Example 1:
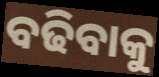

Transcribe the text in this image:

ବଢିବାକୁ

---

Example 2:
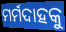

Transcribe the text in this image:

ମର୍ମଦାହକୁ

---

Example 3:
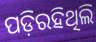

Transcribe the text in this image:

ପଡ଼ିରହିଥିଲି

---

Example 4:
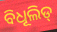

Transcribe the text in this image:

ବିଧୂଲିଡ୍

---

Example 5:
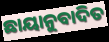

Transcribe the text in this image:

ଛାୟାନୁବାଦିତ